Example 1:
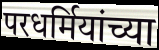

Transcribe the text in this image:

परधर्मियांच्या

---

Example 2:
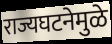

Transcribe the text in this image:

राज्यघटनेमुळे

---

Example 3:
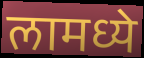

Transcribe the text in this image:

लामध्ये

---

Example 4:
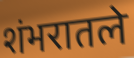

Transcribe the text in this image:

शंभरातले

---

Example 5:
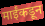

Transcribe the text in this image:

माईंकडून